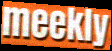
meekly